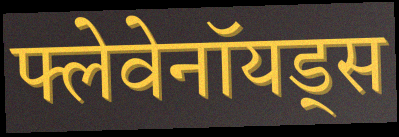
फ्लेवेनॉयड्स